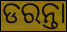
ଡରନ୍ତା